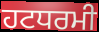
ਹਟਧਰਮੀ